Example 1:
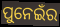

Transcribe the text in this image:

ପୁନେଇଁର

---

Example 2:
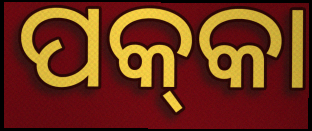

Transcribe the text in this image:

ପକ୍‌କା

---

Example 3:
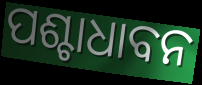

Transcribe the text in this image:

ପଶ୍ଚାଧାବନ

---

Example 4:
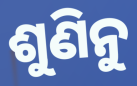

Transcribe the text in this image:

ଶୁଣିନୁ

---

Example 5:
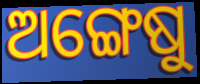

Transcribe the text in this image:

ଅଙ୍ଗେଷୁ